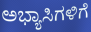
ಅಭ್ಯಾಸಿಗಳಿಗೆ